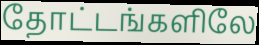
தோட்டங்களிலே